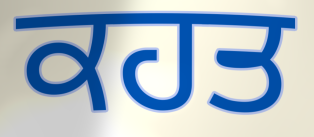
ਕਹਤ